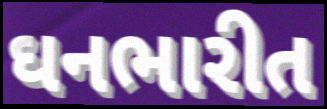
ઘનભારીત